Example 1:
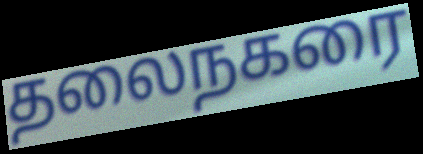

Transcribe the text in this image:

தலைநகரை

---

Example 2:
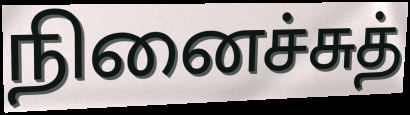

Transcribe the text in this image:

நினைச்சுத்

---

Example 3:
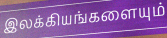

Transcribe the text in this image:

இலக்கியங்களையும்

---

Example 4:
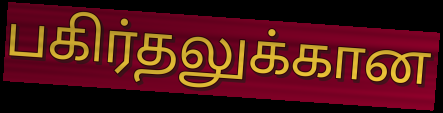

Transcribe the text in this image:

பகிர்தலுக்கான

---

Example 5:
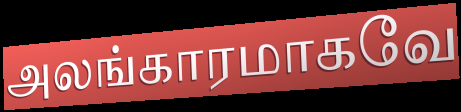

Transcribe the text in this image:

அலங்காரமாகவே